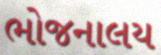
ભોજનાલય